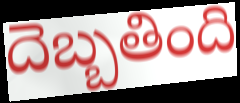
దెబ్బతింది